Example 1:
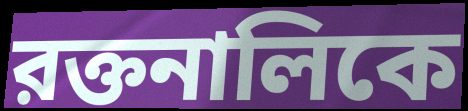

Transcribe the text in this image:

রক্তনালিকে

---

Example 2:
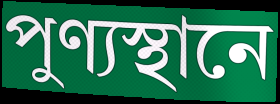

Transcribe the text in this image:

পুণ্যস্থানে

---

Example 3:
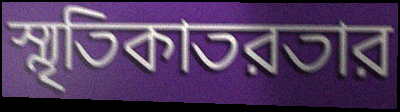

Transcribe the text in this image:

স্মৃতিকাতরতার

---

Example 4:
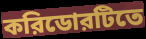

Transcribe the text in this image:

করিডোরটিতে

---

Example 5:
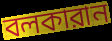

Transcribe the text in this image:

বলকারান